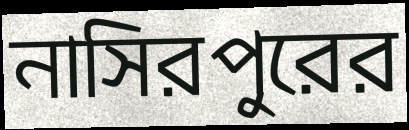
নাসিরপুরের